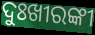
ଦୁଃଖୀରଙ୍କୀ